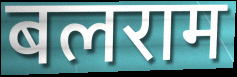
बलराम